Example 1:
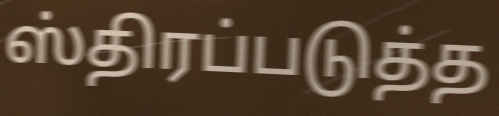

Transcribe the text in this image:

ஸ்திரப்படுத்த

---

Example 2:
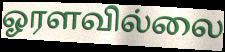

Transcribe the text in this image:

ஓரளவில்லை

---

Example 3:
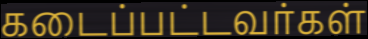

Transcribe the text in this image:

கடைப்பட்டவர்கள்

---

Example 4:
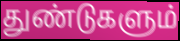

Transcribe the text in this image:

துண்டுகளும்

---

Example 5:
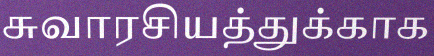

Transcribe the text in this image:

சுவாரசியத்துக்காக